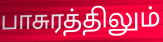
பாசுரத்திலும்